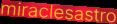
miraclesastro